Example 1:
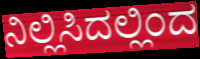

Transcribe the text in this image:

ನಿಲ್ಲಿಸಿದಲ್ಲಿಂದ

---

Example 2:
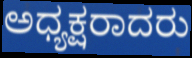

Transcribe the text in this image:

ಅಧ್ಯಕ್ಷರಾದರು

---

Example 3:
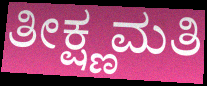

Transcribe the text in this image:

ತೀಕ್ಷ್ಣಮತಿ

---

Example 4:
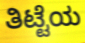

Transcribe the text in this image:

ತಿಟ್ಟೆಯ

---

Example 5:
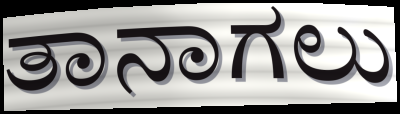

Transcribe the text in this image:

ತಾನಾಗಲು